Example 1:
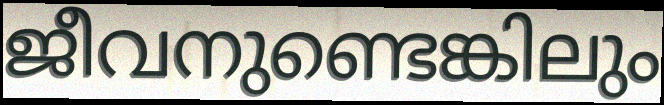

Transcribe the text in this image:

ജീവനുണ്ടെങ്കിലും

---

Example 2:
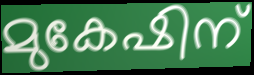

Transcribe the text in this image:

മുകേഷിന്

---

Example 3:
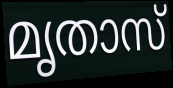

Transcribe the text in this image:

മൃതാസ്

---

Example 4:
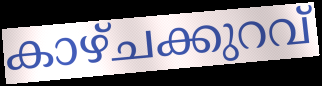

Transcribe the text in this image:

കാഴ്ചക്കുറവ്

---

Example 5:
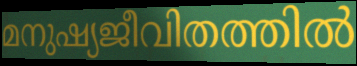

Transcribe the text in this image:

മനുഷ്യജീവിതത്തിൽ